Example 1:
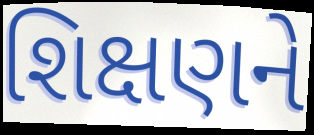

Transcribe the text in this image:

શિક્ષણને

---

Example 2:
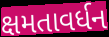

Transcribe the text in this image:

ક્ષમતાવર્ધન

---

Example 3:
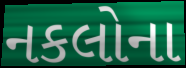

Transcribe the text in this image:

નકલોના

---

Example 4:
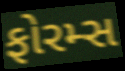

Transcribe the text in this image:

ફોરમ્સ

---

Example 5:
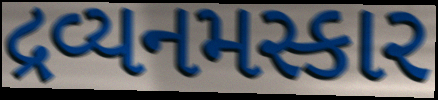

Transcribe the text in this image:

દ્રવ્યનમસ્કાર